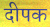
दीपक